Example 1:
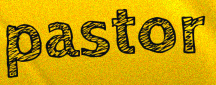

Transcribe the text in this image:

pastor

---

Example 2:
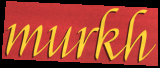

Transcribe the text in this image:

murkh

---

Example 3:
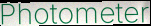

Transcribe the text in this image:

Photometer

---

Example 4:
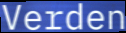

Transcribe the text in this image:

Verden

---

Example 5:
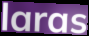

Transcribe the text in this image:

laras